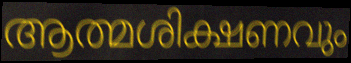
ആത്മശിക്ഷണവും